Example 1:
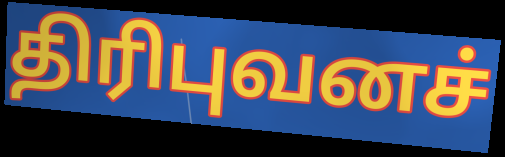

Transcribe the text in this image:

திரிபுவனச்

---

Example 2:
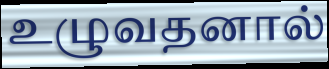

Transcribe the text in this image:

உழுவதனால்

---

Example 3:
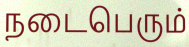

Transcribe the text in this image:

நடைபெரும்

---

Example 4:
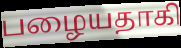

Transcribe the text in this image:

பழையதாகி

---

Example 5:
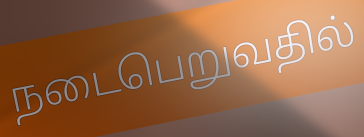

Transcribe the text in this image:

நடைபெறுவதில்